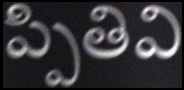
ప్పితివి